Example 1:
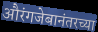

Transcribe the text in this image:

औरंगजेबानंतरच्या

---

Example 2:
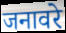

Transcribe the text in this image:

जनावरे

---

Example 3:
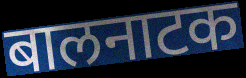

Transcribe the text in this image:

बालनाटक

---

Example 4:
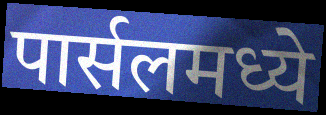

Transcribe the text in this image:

पार्सलमध्ये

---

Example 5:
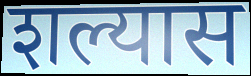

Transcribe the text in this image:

शल्यास